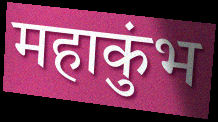
महाकुंभ